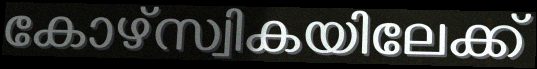
കോഴ്സ്വികയിലേക്ക്